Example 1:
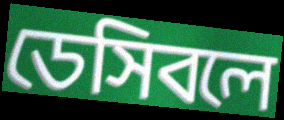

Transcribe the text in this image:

ডেসিবলে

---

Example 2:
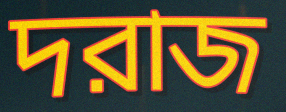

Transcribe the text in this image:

দরাজ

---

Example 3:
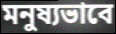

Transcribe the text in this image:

মনুষ্যভাবে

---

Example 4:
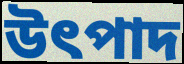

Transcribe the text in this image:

উৎপাদ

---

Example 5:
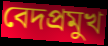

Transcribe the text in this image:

বেদপ্রমুখ